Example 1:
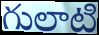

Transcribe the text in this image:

గులాటి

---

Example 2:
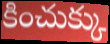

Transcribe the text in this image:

కించుక్కు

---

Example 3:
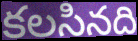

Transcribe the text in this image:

కలసినది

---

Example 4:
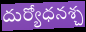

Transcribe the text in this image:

దుర్యోధనశ్చ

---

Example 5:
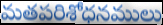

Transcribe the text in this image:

మతపరిశోధనములు